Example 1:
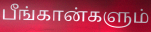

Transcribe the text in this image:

பீங்கான்களும்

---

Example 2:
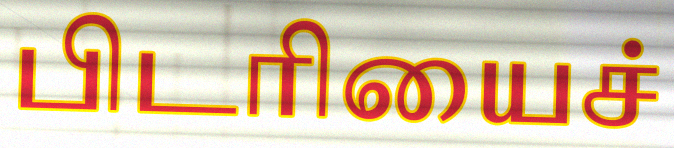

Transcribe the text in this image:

பிடரியைச்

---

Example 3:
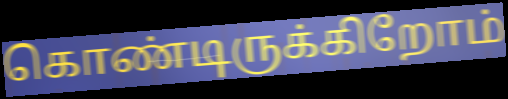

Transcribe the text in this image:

கொண்டிருக்கிறோம்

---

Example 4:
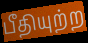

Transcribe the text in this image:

பீதியுற்ற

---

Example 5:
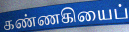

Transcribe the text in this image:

கண்ணகியைப்